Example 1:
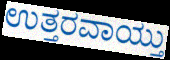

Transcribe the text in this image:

ಉತ್ತರವಾಯ್ತು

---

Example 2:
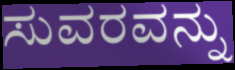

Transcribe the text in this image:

ಸುವರವನ್ನು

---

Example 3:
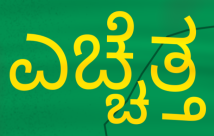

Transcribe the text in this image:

ಎಚ್ಚೆತ್ತ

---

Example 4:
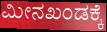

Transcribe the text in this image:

ಮೀನಖಂಡಕ್ಕೆ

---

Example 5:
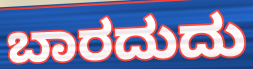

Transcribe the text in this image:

ಬಾರದುದು